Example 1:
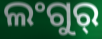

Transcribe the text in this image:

ଲଂଗୁର୍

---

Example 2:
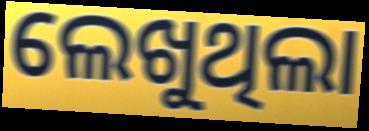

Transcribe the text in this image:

ଲେଖୁଥିଲା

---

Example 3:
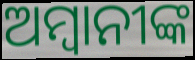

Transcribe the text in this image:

ଅମ୍ବାନୀଙ୍କ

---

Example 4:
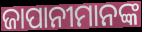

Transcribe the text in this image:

ଜାପାନୀମାନଙ୍କ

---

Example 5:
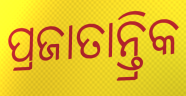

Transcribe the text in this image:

ପ୍ରଜାତାନ୍ତ୍ରିକ